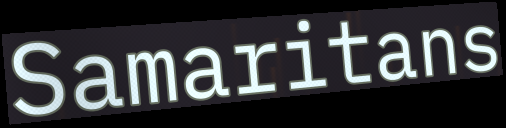
Samaritans